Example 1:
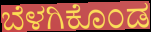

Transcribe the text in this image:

ಬೆಳಗಿಕೊಂಡ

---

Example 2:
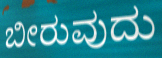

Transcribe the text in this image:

ಬೀರುವುದು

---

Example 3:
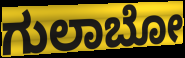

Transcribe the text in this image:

ಗುಲಾಬೋ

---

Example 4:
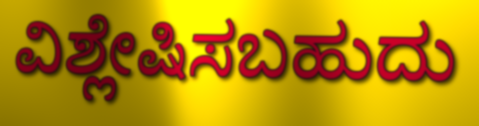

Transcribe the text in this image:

ವಿಶ್ಲೇಷಿಸಬಹುದು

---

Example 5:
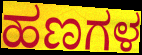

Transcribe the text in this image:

ಹಣಗಳ